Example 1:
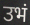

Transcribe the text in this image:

उभं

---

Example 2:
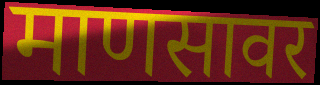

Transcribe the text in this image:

माणसावर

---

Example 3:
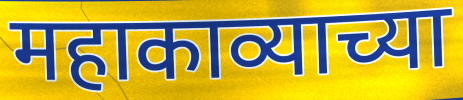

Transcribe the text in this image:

महाकाव्याच्या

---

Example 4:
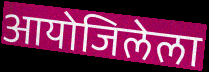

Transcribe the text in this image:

आयोजिलेला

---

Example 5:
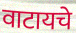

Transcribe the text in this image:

वाटायचे